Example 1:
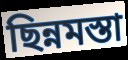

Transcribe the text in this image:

ছিন্নমস্তা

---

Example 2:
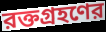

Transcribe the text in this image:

রক্তগ্রহণের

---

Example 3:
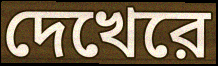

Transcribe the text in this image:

দেখেরে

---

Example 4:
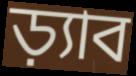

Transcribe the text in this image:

ড়্যাব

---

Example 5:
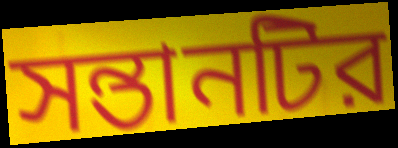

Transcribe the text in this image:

সন্তানটির